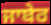
ਜਾਬੇਰ